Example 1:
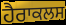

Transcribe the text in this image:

ਹੈਰਾਕਲਸ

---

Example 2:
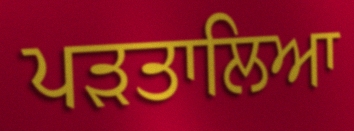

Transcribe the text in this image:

ਪੜਤਾਲਿਆ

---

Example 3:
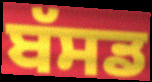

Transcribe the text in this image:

ਬੱਸਡ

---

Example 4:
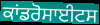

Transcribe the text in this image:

ਕਾਂਡਰੋਸਾਈਟਸ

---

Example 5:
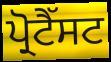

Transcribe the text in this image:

ਪ੍ਰੋਟੈੱਸਟ